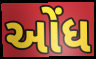
ઓંધ